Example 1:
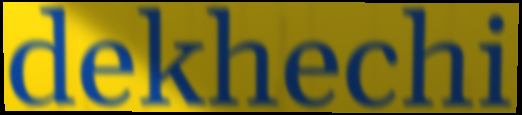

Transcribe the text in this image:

dekhechi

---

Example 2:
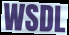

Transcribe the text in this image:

WSDL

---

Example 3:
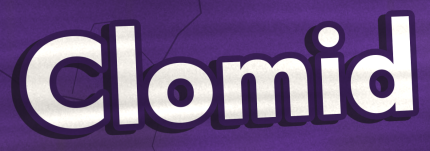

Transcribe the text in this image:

Clomid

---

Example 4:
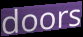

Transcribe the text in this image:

doors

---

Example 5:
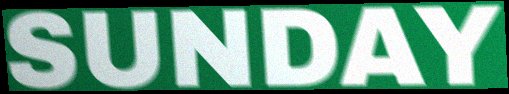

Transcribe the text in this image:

SUNDAY